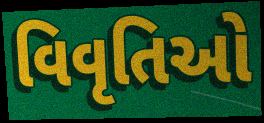
વિવૃતિઓ